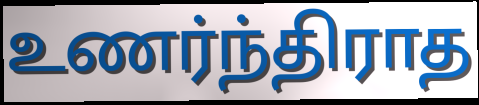
உணர்ந்திராத